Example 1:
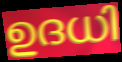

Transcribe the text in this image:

ഉദധി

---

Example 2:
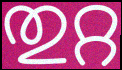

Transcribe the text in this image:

തുറ്റ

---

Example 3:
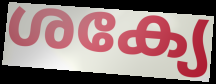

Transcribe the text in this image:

ശക്യേ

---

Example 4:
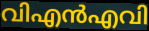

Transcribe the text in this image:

വിഎൻഎവി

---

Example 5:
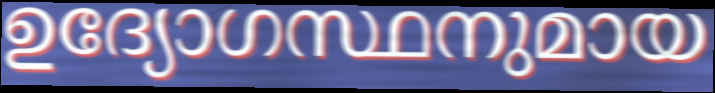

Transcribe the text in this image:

ഉദ്യോഗസ്ഥനുമായ